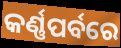
କର୍ଣ୍ଣପର୍ବରେ